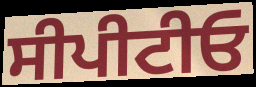
ਸੀਪੀਟੀਓ